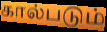
கால்படும்